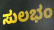
ಸುಲಭಂ